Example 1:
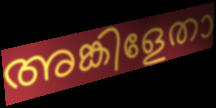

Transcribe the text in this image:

അങ്കിളേതാ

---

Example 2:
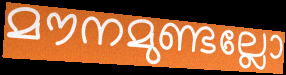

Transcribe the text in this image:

മൗനമുണ്ടല്ലോ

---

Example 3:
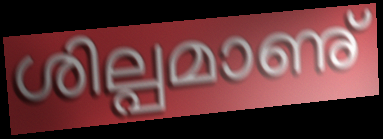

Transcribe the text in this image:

ശില്പമാണു്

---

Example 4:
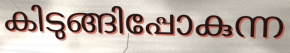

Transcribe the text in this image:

കിടുങ്ങിപ്പോകുന്ന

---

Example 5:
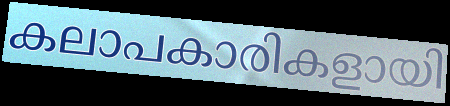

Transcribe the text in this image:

കലാപകാരികളായി